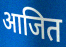
आजित